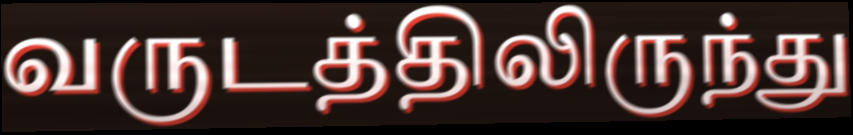
வருடத்திலிருந்து